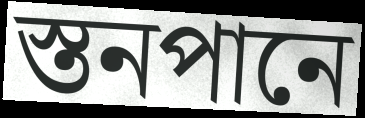
স্তনপানে